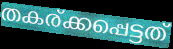
തകര്ക്കപ്പെട്ടത്